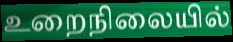
உறைநிலையில்